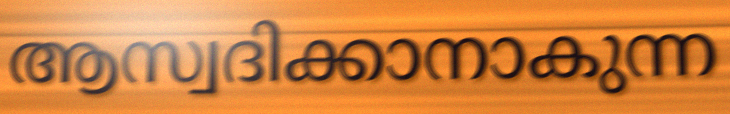
ആസ്വദിക്കാനാകുന്ന